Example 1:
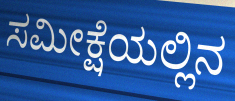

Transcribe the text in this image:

ಸಮೀಕ್ಷೆಯಲ್ಲಿನ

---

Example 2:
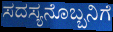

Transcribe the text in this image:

ಸದಸ್ಯನೊಬ್ಬನಿಗೆ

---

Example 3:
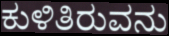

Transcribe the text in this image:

ಕುಳಿತಿರುವನು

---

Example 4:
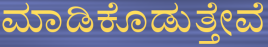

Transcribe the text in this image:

ಮಾಡಿಕೊಡುತ್ತೇವೆ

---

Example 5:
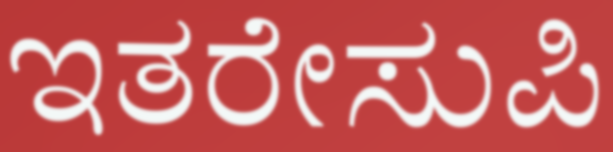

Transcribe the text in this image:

ಇತರೇಸುಪಿ